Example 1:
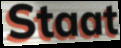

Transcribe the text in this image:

Staat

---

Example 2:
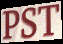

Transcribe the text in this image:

PST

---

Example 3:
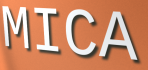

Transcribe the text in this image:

MICA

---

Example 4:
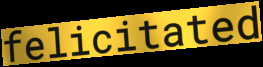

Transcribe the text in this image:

felicitated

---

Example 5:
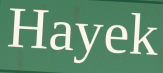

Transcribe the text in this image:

Hayek